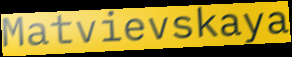
Matvievskaya